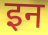
इन